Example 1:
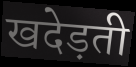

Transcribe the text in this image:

खदेड़ती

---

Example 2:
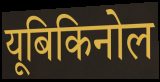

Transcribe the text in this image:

यूबिकिनोल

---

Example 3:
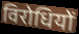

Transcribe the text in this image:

विरोधियों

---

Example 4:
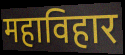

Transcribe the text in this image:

महाविहार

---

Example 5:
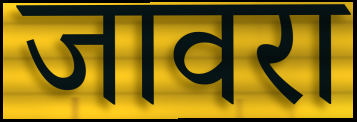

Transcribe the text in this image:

जावरा